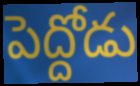
పెద్దోడు